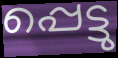
പ്പെട്ടു